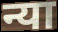
न्या